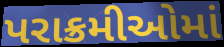
પરાક્રમીઓમાં